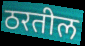
ठरतील